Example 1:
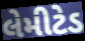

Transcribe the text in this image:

લેમીટેડ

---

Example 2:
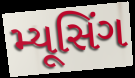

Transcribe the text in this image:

મ્યૂસિંગ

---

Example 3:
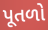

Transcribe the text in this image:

પૂતળો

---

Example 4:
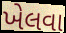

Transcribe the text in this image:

ખેલવા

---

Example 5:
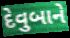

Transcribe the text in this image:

દેવુબાને